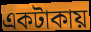
একটাকায়